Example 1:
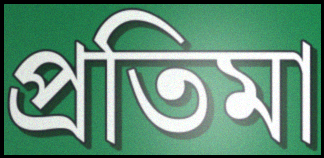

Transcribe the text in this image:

প্ৰতিমা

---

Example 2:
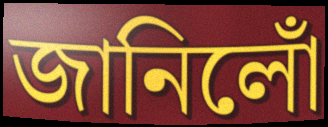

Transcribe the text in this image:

জানিলোঁ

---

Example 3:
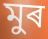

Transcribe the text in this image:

মুৰ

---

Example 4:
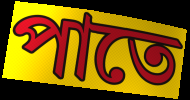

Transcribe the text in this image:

পাতে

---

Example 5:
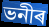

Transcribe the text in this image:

ভনীৰ